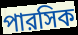
পারসিক